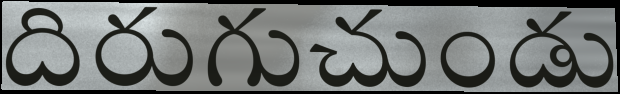
దిరుగుచుండు